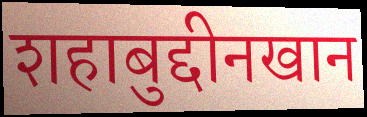
शहाबुद्दीनखान